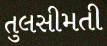
તુલસીમતી